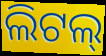
ଲିଟଲ୍